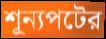
শূন্যপটের